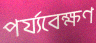
পৰ্য্যবেক্ষণ